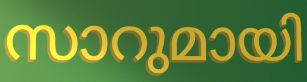
സാറുമായി